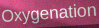
Oxygenation